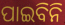
ପାଇବିନି